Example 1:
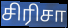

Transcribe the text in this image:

சிரிசா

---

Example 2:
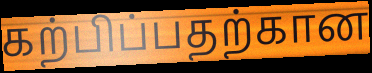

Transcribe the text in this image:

கற்பிப்பதற்கான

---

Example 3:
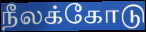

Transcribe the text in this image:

நீலக்கோடு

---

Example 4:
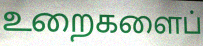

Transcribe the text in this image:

உறைகளைப்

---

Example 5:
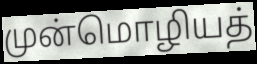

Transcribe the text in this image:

முன்மொழியத்